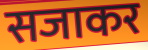
सजाकर